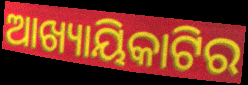
ଆଖ୍ୟାୟିକାଟିର